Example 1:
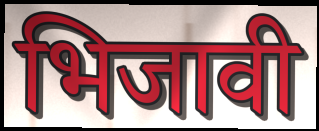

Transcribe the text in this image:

भिजावी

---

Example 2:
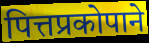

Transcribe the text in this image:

पित्तप्रकोपाने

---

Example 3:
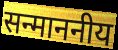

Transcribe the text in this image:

सन्माननीय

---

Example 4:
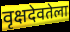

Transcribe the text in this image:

वृक्षदेवतेला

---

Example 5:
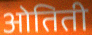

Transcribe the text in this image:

ओतिती